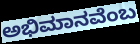
ಅಭಿಮಾನವೆಂಬ